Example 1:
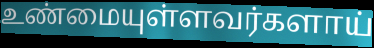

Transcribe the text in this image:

உண்மையுள்ளவர்களாய்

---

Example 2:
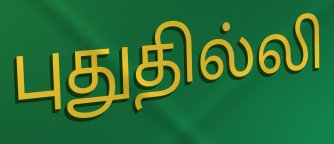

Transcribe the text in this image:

புதுதில்லி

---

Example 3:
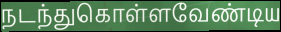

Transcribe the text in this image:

நடந்துகொள்ளவேண்டிய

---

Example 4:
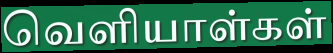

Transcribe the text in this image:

வெளியாள்கள்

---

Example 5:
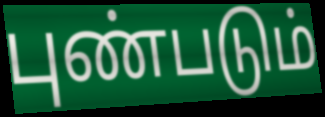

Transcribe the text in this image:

புண்படும்